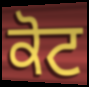
ਕੋਟ